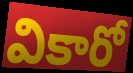
వికారో